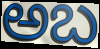
అబ